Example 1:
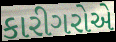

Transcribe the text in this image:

કારીગરોએ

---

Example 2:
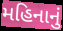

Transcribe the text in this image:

મહિનાનું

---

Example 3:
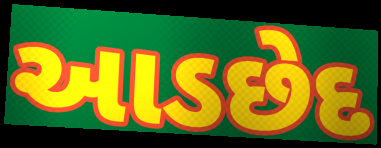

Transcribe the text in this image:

આડછેદ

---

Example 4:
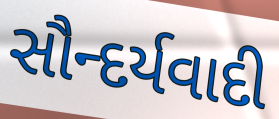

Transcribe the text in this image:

સૌન્દર્યવાદી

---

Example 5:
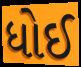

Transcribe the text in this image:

ધોઈ